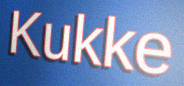
Kukke